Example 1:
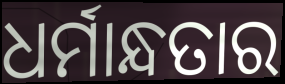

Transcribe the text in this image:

ଧର୍ମାନ୍ଧତାର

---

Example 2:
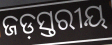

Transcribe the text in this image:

ଜଡ଼ସ୍ତରୀୟ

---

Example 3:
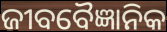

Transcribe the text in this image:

ଜୀବବୈଜ୍ଞାନିକ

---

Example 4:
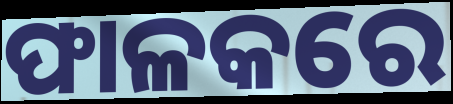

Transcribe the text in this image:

ଫାଳକରେ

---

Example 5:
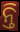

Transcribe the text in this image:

ନ୍ତି